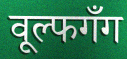
वूल्फगँग